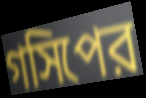
গসিপের